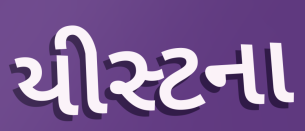
યીસ્ટના